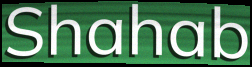
Shahab